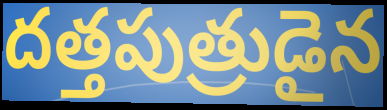
దత్తపుత్రుడైన